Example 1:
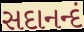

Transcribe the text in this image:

સદાનન્દં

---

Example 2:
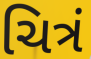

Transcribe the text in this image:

ચિત્રં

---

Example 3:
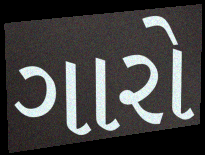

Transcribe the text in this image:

ગારો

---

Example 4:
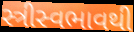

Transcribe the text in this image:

સ્ત્રીસ્વભાવથી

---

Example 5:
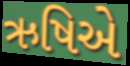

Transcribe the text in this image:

ઋષિએ